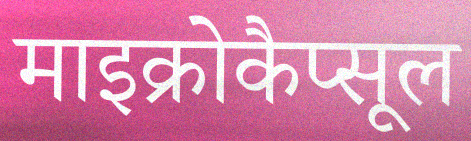
माइक्रोकैप्सूल